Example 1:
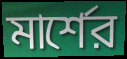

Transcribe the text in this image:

মার্শের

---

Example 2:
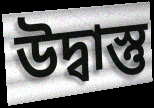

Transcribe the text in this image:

উদ্বাস্তু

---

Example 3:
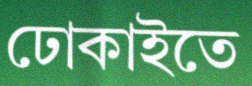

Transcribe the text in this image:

ঢোকাইতে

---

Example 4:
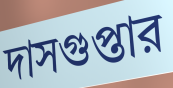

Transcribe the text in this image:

দাসগুপ্তার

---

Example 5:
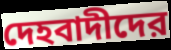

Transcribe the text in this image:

দেহবাদীদের